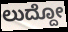
ಲುದ್ದೋ